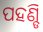
ପହଣ୍ଡି